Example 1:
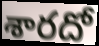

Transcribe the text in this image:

శారదో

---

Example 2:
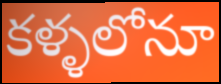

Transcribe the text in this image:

కళ్ళలోనూ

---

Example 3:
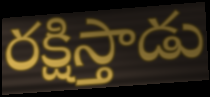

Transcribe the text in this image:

రక్షిస్తాడు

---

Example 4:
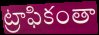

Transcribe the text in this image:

ట్రాఫికంతా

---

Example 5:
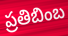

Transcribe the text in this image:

ప్రతిబింబ